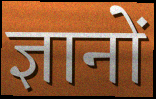
ज्ञानों